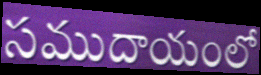
సముదాయంలో